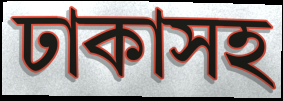
ঢাকাসহ